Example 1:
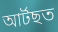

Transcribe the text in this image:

আৰ্টছত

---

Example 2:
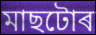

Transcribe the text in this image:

মাছটোৰ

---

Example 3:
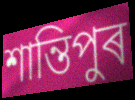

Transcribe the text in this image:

শান্তিপুৰ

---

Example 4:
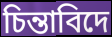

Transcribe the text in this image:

চিন্তাবিদে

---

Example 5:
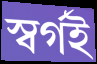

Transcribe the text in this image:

স্বৰ্গই